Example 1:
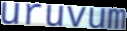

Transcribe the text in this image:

uruvum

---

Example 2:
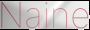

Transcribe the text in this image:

Naine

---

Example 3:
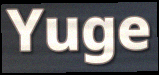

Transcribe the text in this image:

Yuge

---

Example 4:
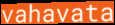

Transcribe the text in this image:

vahavata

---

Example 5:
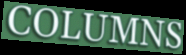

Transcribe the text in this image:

COLUMNS